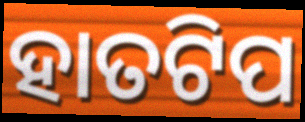
ହାତଟିପ